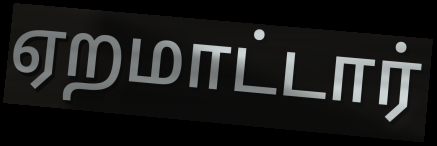
ஏறமாட்டார்